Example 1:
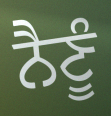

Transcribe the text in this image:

ਨੈਣੂੰ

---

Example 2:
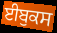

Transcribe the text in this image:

ਈਬੁਕਸ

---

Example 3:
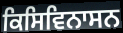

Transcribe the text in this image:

ਕਿਸਿਵਿਨਾਸਨ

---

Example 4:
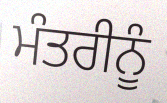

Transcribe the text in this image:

ਮੰਤਰੀਨੂੰ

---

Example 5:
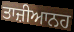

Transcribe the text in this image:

ਤਾਜ਼ੀਆਨਹ